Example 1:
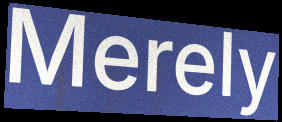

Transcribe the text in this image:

Merely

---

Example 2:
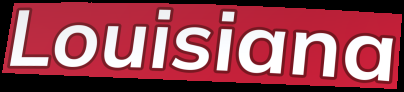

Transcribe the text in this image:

Louisiana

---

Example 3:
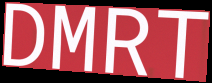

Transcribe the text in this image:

DMRT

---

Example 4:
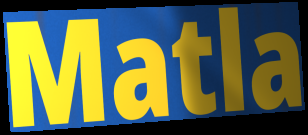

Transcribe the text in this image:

Matla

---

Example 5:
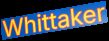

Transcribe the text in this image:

Whittaker